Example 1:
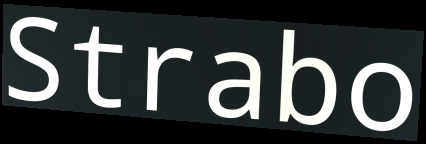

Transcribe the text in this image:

Strabo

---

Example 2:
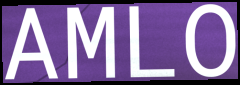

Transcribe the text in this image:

AMLO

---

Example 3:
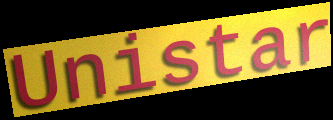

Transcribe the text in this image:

Unistar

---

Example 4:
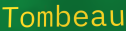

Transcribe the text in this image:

Tombeau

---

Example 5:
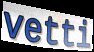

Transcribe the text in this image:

vetti